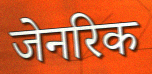
जेनरिक